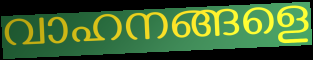
വാഹനങ്ങളെ